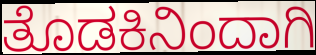
ತೊಡಕಿನಿಂದಾಗಿ